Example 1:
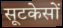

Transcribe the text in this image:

सूटकेसों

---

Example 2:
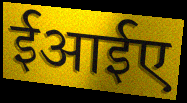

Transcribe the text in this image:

ईआईए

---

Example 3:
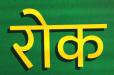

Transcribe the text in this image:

रोक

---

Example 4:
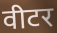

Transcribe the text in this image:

वीटर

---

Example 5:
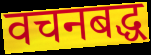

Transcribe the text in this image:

वचनबद्ध